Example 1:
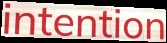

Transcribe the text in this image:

intention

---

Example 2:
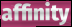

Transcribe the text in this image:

affinity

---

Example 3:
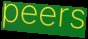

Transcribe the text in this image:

peers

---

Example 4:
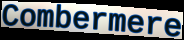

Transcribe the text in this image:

Combermere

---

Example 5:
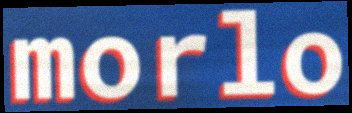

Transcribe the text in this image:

morlo